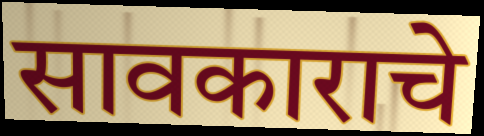
सावकाराचे